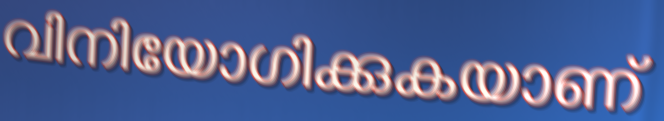
വിനിയോഗിക്കുകയാണ്